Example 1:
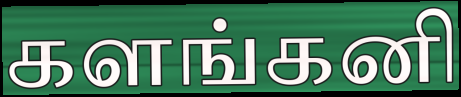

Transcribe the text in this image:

களங்கனி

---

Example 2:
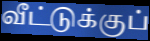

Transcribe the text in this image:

வீட்டுக்குப்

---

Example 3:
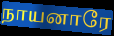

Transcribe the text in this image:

நாயனாரே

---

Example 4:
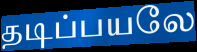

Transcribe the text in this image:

தடிப்பயலே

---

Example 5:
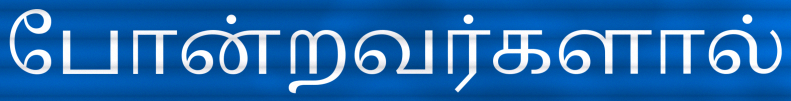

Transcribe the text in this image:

போன்றவர்களால்